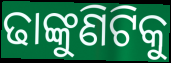
ଢାଙ୍କୁଣିଟିକୁ